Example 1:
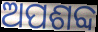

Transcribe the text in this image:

ଅପଶବ୍ଦ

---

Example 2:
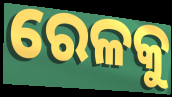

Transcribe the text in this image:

ରେଳକୁ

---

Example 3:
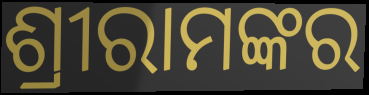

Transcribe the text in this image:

ଶ୍ରୀରାମଙ୍କର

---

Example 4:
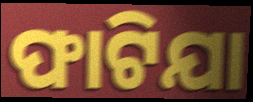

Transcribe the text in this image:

ଫାଟିଯା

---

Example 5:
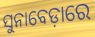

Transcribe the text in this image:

ସୁନାବେଡ଼ାରେ